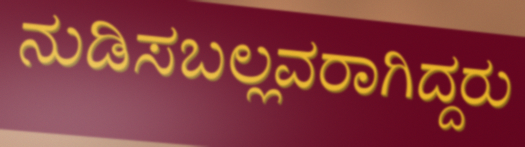
ನುಡಿಸಬಲ್ಲವರಾಗಿದ್ದರು